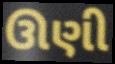
ઊણી